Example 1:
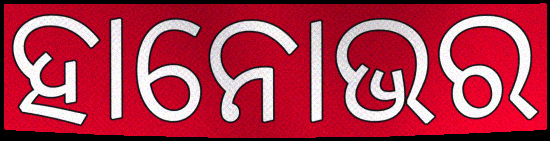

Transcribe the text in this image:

ହାନୋଭର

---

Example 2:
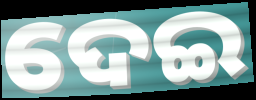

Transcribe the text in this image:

ଦେଇ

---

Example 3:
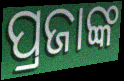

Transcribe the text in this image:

ପ୍ରଜାଙ୍କ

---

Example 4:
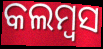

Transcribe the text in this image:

କଲମ୍ବସ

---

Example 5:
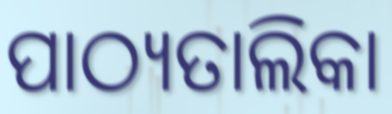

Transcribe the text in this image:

ପାଠ୍ୟତାଲିକା